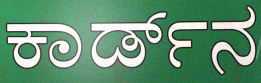
ಕಾರ್ಡ್‌ನ